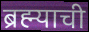
ब्रह्म्याची